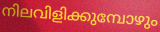
നിലവിളിക്കുമ്പോഴും